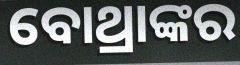
ବୋଥ୍ରାଙ୍କର